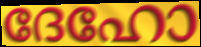
ദേഹോ